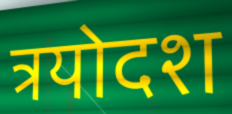
त्रयोदश